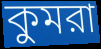
কুমরা